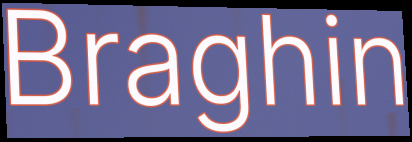
Braghin